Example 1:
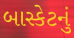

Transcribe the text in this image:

બાસ્કેટનું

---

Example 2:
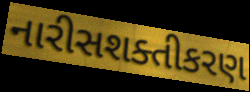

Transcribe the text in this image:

નારીસશક્તીકરણ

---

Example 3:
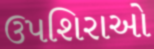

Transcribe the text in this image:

ઉપશિરાઓ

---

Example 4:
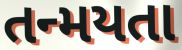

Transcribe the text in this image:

તન્મયતા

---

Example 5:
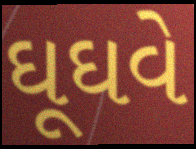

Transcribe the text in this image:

ઘૂઘવે